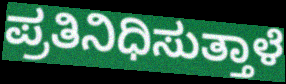
ಪ್ರತಿನಿಧಿಸುತ್ತಾಳೆ